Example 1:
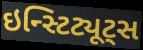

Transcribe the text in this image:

ઇન્સ્ટિટ્યૂટ્સ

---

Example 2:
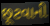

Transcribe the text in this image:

છૂટવાની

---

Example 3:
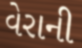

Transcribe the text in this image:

વેરાની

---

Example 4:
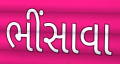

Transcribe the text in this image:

ભીંસાવા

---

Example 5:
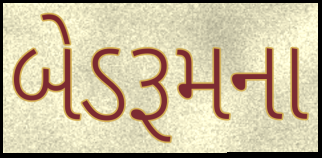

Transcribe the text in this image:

બેડરૂમના